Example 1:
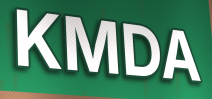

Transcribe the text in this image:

KMDA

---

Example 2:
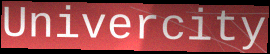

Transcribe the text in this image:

Univercity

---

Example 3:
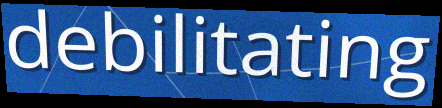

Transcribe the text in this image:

debilitating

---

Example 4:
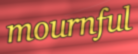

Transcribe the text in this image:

mournful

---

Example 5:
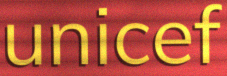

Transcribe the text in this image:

unicef